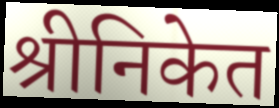
श्रीनिकेत